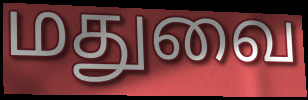
மதுவை